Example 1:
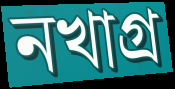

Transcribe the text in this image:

নখাগ্র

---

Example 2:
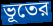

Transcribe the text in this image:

ভূতের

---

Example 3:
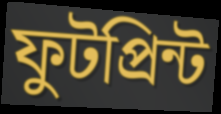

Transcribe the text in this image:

ফুটপ্রিন্ট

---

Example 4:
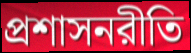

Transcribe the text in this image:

প্রশাসনরীতি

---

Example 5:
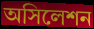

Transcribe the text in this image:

অসিলেশন